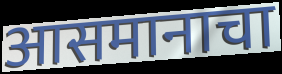
आसमानाचा